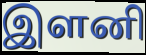
இளனி